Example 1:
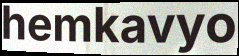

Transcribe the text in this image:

hemkavyo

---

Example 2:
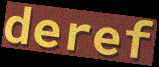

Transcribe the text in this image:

deref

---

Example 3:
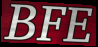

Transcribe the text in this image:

BFE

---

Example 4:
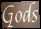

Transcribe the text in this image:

Gods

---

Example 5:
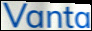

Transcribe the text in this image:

Vanta